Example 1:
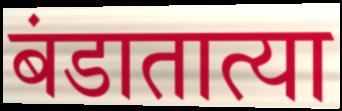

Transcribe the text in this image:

बंडातात्या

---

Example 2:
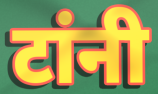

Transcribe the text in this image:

टांनी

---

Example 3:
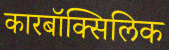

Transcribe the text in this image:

कारबॉक्सिलिक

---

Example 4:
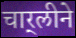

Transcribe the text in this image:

चार्लीने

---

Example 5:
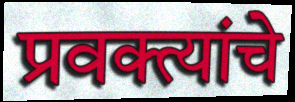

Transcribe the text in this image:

प्रवक्त्यांचे